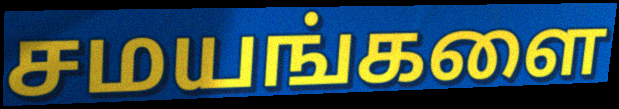
சமயங்களை